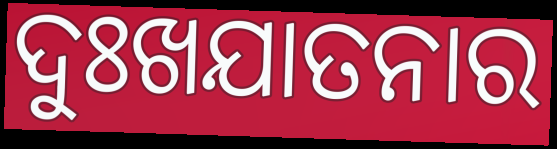
ଦୁଃଖଯାତନାର